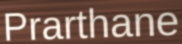
Prarthane